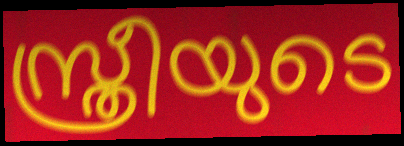
സ്ത്രീയുടെ